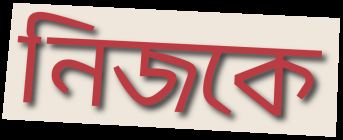
নিজকে